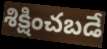
శిక్షించబడే